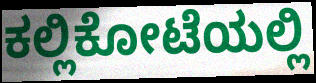
ಕಲ್ಲಿಕೋಟೆಯಲ್ಲಿ